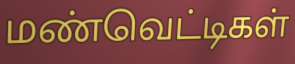
மண்வெட்டிகள்